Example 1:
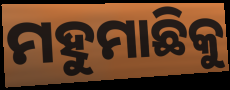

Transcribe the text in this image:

ମହୁମାଛିକୁ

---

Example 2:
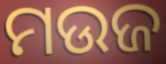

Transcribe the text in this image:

ମଉଜ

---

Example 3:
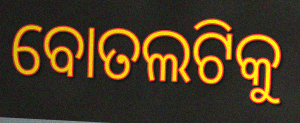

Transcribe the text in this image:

ବୋତଲଟିକୁ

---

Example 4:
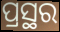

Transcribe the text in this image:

ପ୍ରସ୍ଥର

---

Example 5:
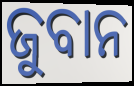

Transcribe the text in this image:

ଜୁବାନ